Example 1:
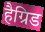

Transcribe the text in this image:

हैग्रिड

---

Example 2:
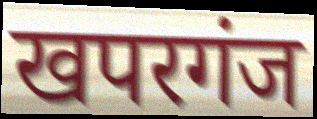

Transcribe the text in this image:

खपरगंज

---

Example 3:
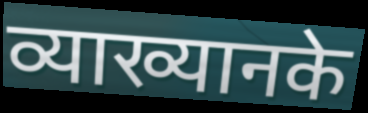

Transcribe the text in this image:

व्याख्यानके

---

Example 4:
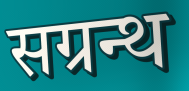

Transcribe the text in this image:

सग्रन्थ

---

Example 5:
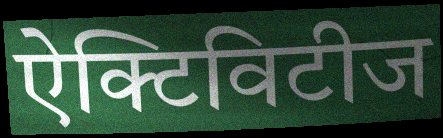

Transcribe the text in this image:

ऐक्टिविटीज